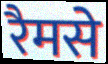
रैमसे